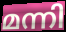
മന്നി